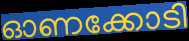
ഓണക്കോടി